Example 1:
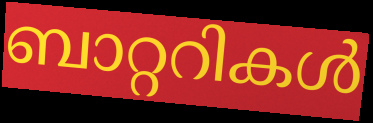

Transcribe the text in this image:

ബാറ്ററികൾ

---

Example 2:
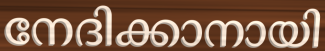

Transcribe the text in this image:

നേദിക്കാനായി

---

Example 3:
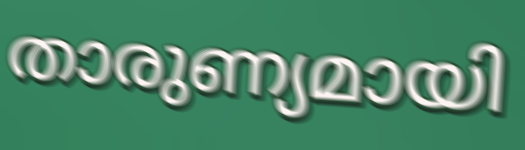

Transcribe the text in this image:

താരുണ്യമായി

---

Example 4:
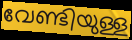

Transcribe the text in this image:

വേണ്ടിയുള്ള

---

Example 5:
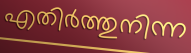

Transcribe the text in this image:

എതിർത്തുനിന്ന